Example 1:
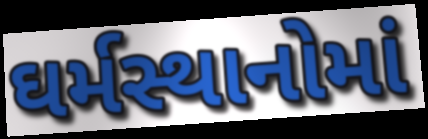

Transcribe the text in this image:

ઘર્મસ્થાનોમાં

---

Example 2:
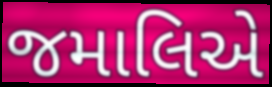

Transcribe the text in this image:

જમાલિએ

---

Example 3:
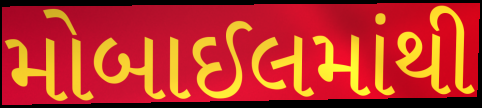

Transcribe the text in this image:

મોબાઈલમાંથી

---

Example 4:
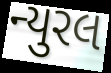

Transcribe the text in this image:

ન્યુરલ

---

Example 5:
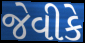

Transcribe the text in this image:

જેવીકે